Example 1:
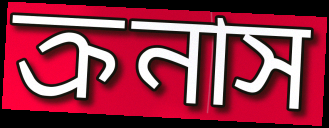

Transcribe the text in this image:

ক্রনাস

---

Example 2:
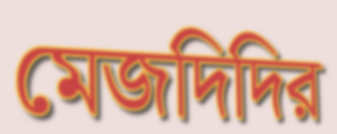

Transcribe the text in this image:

মেজদিদির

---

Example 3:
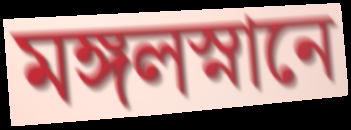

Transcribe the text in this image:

মঙ্গলস্নানে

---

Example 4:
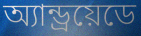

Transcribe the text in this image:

অ্যান্ড্রয়েডে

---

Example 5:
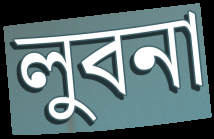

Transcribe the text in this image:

লুবনা